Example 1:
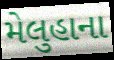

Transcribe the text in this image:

મેલુહાના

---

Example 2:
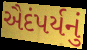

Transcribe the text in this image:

ઐદંપર્યનું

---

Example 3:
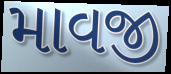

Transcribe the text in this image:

માવજી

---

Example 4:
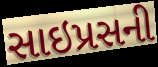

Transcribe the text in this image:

સાઇપ્રસની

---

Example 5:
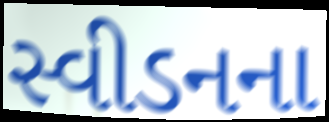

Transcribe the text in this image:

સ્વીડનના